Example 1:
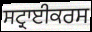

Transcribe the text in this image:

ਸਟ੍ਰਾਈਕਰਸ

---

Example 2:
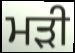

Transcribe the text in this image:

ਮੜੀ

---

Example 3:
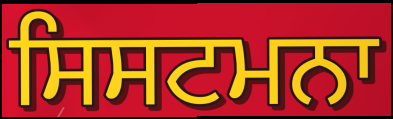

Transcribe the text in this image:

ਸਿਸਟਮਨਾ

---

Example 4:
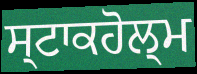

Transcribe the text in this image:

ਸ੍ਟਾਕਹੋਲ੍ਮ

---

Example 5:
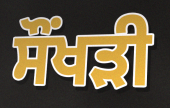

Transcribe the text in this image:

ਸੌਂਖੜੀ